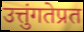
उत्तुंगतेप्रत